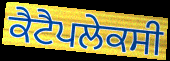
ਕੈਟੈਪਲੇਕਸੀ